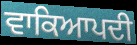
ਵਾਕਿਆਪਦੀ